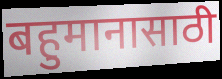
बहुमानासाठी